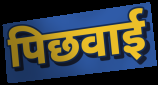
पिछवाई